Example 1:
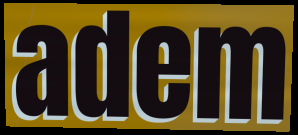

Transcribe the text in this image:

adem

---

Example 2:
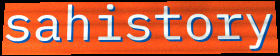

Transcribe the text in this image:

sahistory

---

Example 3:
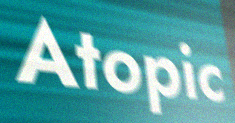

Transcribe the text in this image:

Atopic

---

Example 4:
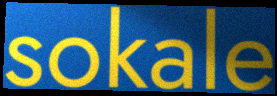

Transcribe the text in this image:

sokale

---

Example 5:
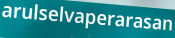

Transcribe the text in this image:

arulselvaperarasan